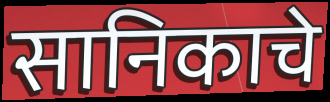
सानिकाचे